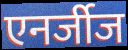
एनर्जीज